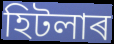
হিটলাৰ